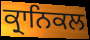
ਕ੍ਰਾਨਿਕਲ